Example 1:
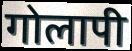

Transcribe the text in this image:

गोलापी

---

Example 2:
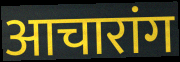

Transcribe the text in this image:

आचारांग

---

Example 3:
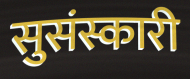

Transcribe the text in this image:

सुसंस्कारी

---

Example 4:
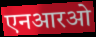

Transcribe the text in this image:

एनआरओ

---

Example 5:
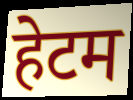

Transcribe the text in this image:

हेटम